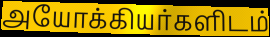
அயோக்கியர்களிடம்